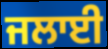
ਜਲਾਈ